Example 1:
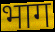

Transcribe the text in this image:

भाग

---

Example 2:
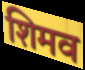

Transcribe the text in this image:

शिमव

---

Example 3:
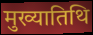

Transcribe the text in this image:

मुख्यातिथि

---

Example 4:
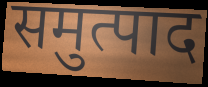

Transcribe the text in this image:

समुत्पाद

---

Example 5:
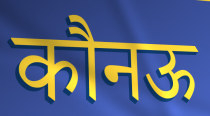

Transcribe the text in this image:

कौनऊ